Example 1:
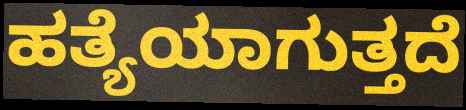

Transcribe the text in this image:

ಹತ್ಯೆಯಾಗುತ್ತದೆ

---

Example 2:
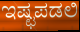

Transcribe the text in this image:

ಇಷ್ಟಪಡಲಿ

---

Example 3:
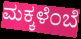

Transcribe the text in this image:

ಮಕ್ಕಳೆಂಬೆ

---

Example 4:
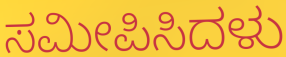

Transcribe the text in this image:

ಸಮೀಪಿಸಿದಳು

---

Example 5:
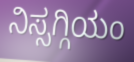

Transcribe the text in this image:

ನಿಸ್ಸಗ್ಗಿಯಂ